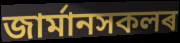
জাৰ্মানসকলৰ